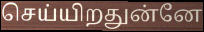
செய்யிறதுன்னே